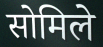
सोमिले